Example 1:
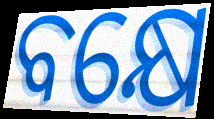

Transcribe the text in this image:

ବକ୍ଷେ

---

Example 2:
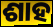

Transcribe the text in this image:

ଶାହ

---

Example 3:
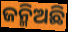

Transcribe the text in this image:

ଜନ୍ମିଅଛି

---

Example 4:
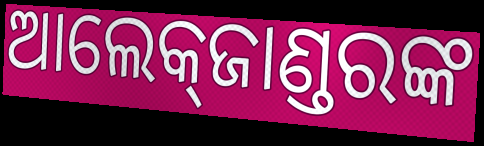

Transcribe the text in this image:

ଆଲେକ୍‍ଜାଣ୍ଡରଙ୍କ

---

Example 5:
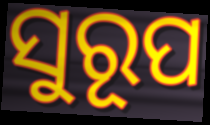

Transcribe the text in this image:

ସୁରୂପ